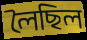
লৈছিল